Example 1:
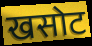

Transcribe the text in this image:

खसोट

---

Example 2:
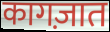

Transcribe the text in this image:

कागज़ात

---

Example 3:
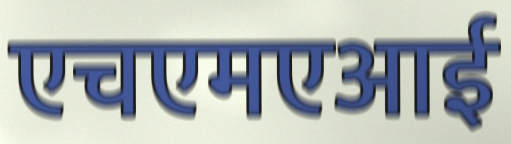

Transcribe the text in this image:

एचएमएआई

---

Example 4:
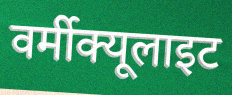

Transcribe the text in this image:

वर्मीक्यूलाइट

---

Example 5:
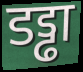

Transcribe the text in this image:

डड्ढा